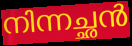
നിന്നച്ഛൻ